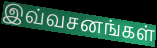
இவ்வசனங்கள்